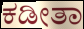
ಕಡೀತಾ